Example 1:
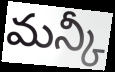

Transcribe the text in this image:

మన్కీ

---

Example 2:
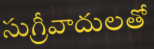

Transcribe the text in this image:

సుగ్రీవాదులతో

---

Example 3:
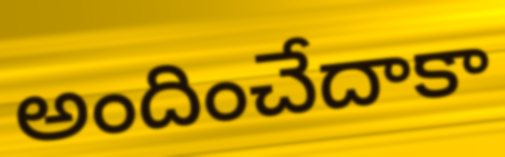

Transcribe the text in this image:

అందించేదాకా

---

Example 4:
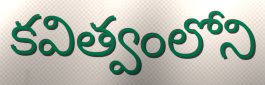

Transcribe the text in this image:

కవిత్వంలోని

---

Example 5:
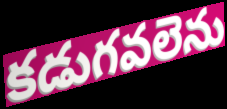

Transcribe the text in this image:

కడుగవలెను